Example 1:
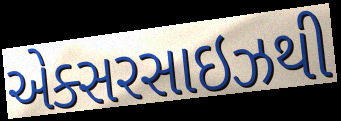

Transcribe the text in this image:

એક્સરસાઇઝથી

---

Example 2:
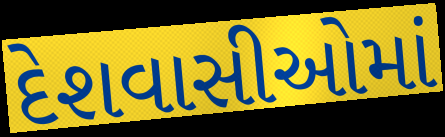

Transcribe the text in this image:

દેશવાસીઓમાં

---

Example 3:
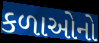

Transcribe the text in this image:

કળાઓનો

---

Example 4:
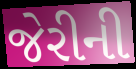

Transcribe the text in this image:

જેરીની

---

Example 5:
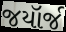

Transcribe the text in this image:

જયૉર્જ